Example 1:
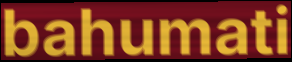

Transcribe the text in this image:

bahumati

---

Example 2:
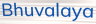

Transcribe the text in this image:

Bhuvalaya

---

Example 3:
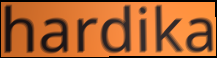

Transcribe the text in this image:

hardika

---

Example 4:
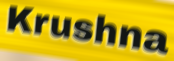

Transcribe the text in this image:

Krushna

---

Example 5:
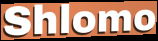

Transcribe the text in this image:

Shlomo